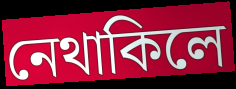
নেথাকিলে